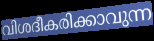
വിശദീകരിക്കാവുന്ന